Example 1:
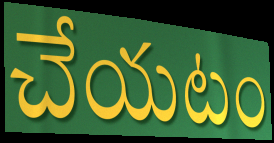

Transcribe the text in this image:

చేయటం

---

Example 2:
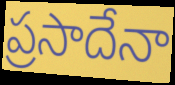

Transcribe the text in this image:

ప్రసాదేనా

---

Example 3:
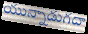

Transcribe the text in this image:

యున్నాడుగదా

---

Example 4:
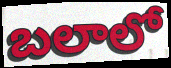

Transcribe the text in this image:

బలాలో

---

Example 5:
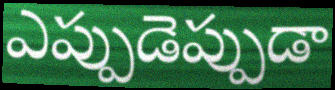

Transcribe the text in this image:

ఎప్పుడెప్పుడా